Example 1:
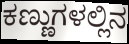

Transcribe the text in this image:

ಕಣ್ಣುಗಳಲ್ಲಿನ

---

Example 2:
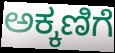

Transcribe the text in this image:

ಅಕ್ಕಣಿಗೆ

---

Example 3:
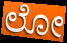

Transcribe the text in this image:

ಲೋ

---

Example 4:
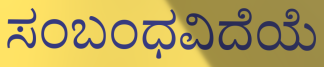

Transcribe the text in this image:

ಸಂಬಂಧವಿದೆಯೆ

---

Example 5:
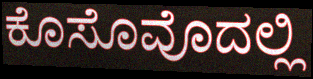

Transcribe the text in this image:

ಕೊಸೊವೊದಲ್ಲಿ